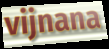
vijnana